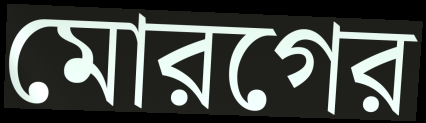
মোরগের